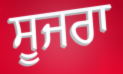
ਸੂਜਰਾ